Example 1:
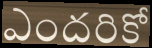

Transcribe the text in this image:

ఎందరికో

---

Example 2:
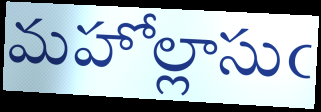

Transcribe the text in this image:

మహోల్లాసుఁ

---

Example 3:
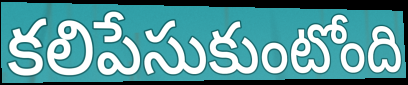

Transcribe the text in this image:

కలిపేసుకుంటోంది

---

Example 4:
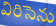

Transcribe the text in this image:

విరిసెను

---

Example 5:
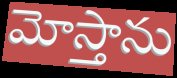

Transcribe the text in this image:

మోస్తాను